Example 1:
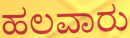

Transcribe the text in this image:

ಹಲವಾರು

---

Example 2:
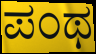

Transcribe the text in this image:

ಪಂಥ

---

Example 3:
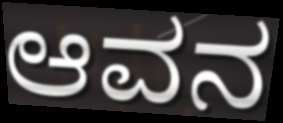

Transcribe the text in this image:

ಆವನ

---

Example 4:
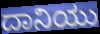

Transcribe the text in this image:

ದಾನಿಯು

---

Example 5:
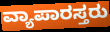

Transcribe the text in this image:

ವ್ಯಾಪಾರಸ್ತರು